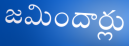
జమిందార్లు